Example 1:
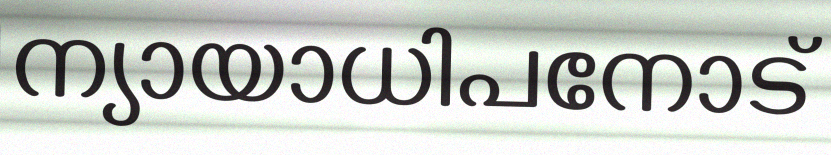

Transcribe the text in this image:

ന്യായാധിപനോട്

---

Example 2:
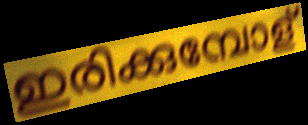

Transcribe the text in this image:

ഇരിക്കുമ്പോള്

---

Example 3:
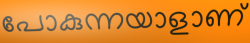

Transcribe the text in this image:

പോകുന്നയാളാണ്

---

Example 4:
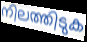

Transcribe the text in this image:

നിലത്തിടുക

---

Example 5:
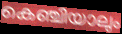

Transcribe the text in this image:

കെഞ്ചിയാലും